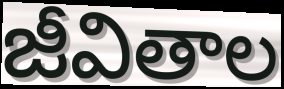
జీవితాల